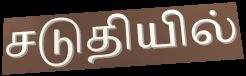
சடுதியில்